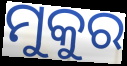
ମୁକୁର